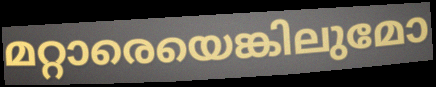
മറ്റാരെയെങ്കിലുമോ